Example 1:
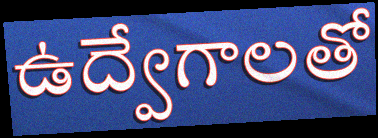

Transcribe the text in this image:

ఉద్వేగాలతో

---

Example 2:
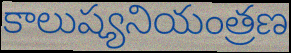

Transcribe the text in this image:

కాలుష్యనియంత్రణ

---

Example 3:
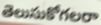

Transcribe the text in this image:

తెలుసుకోగలరా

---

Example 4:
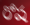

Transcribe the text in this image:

రోష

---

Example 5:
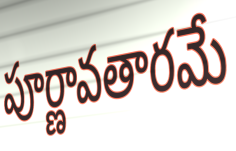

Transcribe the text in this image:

పూర్ణావతారమే